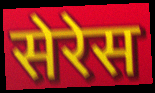
सेरेस